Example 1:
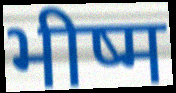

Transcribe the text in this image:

भीष्म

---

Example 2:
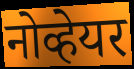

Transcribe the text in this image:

नोव्हेयर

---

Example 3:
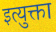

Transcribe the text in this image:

इत्युक्ता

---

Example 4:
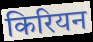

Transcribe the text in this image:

किरियन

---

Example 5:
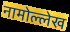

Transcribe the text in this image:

नामोल्लेख